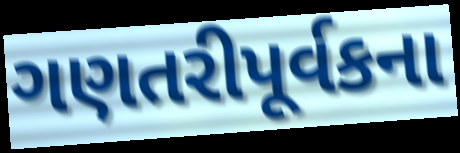
ગણતરીપૂર્વકના